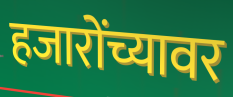
हजारोंच्यावर